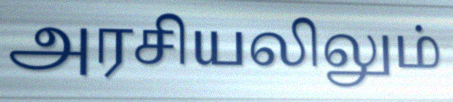
அரசியலிலும்